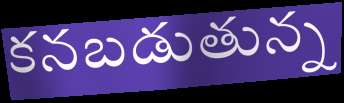
కనబడుతున్న